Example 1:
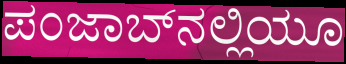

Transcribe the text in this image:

ಪಂಜಾಬ್‌ನಲ್ಲಿಯೂ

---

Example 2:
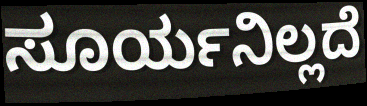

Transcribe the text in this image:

ಸೂರ್ಯನಿಲ್ಲದೆ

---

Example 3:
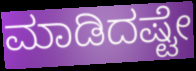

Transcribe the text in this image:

ಮಾಡಿದಷ್ಟೇ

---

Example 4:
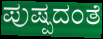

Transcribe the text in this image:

ಪುಷ್ಪದಂತೆ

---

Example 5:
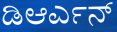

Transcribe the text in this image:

ಡಿಆರ್ಎನ್